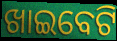
ଖାଇବେଟି